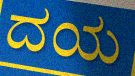
ದಯ